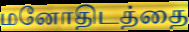
மனோதிடத்தை